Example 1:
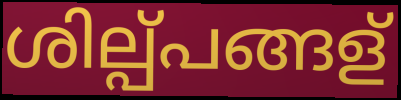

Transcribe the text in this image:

ശില്പ്പങ്ങള്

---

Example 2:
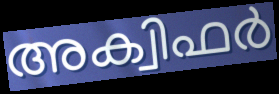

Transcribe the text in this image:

അക്വിഫർ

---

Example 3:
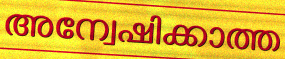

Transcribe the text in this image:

അന്വേഷിക്കാത്ത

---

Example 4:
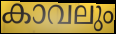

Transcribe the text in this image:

കാവലും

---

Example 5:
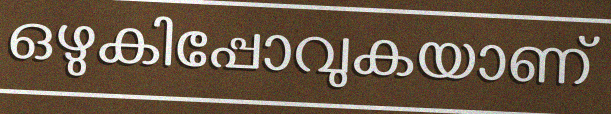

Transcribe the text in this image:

ഒഴുകിപ്പോവുകയാണ്